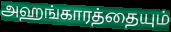
அஹங்காரத்தையும்